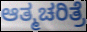
ಆತ್ಮಚರಿತ್ರೆ